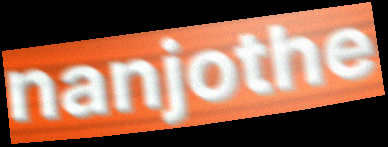
nanjothe